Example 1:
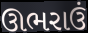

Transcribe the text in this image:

ઊભરાઉં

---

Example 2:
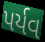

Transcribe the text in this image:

પર્યવ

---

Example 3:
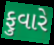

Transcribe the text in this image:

ફુવારે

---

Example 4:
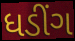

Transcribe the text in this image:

ધડીંગ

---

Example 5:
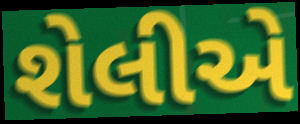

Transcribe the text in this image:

શેલીએ